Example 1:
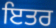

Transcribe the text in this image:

ਇਤਰ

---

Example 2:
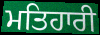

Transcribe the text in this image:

ਮਤਿਹਾਰੀ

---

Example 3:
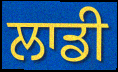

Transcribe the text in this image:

ਲਾਡੀ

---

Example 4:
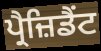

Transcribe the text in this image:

ਪ੍ਰੈਜ਼ਿਡੈਂਟ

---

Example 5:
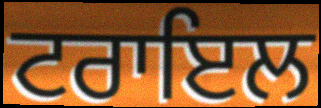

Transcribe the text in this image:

ਟਰਾਇਲ